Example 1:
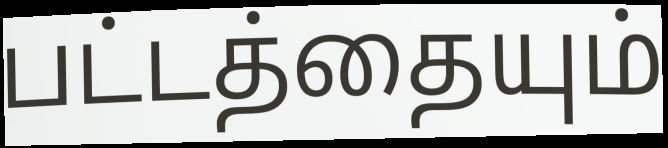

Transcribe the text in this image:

பட்டத்தையும்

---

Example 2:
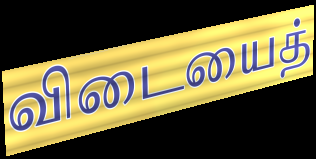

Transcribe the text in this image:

விடையைத்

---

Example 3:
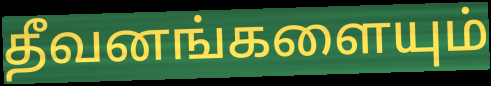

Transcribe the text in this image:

தீவனங்களையும்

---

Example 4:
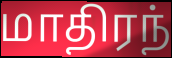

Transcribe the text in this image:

மாதிரந்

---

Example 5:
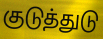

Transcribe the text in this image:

குடுத்துடு